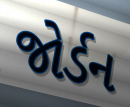
જોર્ડન